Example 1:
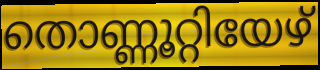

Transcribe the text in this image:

തൊണ്ണൂറ്റിയേഴ്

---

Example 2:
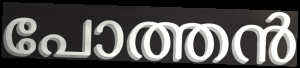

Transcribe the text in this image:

പോത്തൻ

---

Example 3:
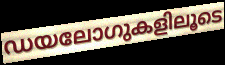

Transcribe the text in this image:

ഡയലോഗുകളിലൂടെ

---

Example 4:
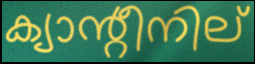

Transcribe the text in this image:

ക്യാന്റീനില്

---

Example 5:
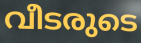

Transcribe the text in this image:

വീടരുടെ